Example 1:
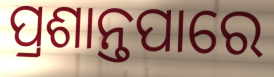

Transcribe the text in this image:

ପ୍ରଶାନ୍ତପାରେ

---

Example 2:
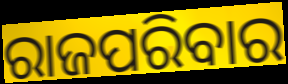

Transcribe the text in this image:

ରାଜପରିବାର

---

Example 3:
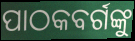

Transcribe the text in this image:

ପାଠକବର୍ଗଙ୍କୁ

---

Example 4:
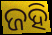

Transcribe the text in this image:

ଜହି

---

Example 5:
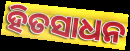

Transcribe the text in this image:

ହିତସାଧନ